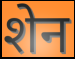
शेन